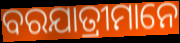
ବରଯାତ୍ରୀମାନେ